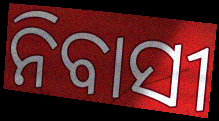
ନିବାସୀ